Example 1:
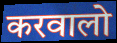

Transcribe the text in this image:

करवालो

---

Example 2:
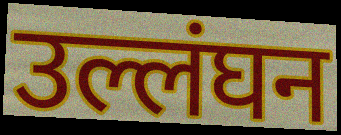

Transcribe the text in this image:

उल्लंघन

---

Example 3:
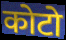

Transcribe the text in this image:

कोटो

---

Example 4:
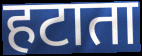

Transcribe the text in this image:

हटाता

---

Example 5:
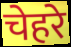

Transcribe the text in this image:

चेहरे